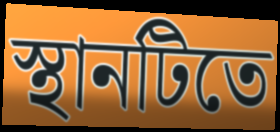
স্থানটিতে